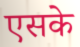
एसके